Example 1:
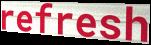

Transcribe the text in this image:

refresh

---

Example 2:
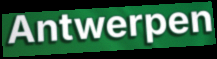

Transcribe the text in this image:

Antwerpen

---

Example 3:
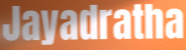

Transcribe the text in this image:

Jayadratha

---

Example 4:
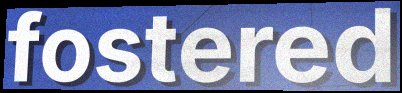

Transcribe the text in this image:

fostered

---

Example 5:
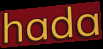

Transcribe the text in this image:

hada